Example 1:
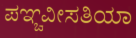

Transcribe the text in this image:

ಪಞ್ಚವೀಸತಿಯಾ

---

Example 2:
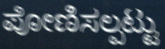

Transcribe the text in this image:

ಪೋಣಿಸಲ್ಪಟ್ಟು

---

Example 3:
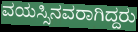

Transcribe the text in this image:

ವಯಸ್ಸಿನವರಾಗಿದ್ದರು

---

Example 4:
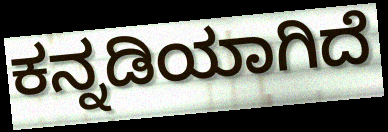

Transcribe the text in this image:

ಕನ್ನಡಿಯಾಗಿದೆ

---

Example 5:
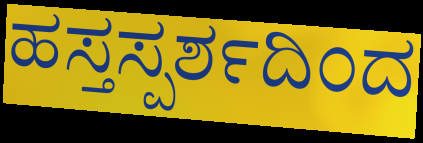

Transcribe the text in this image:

ಹಸ್ತಸ್ಪರ್ಶದಿಂದ